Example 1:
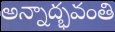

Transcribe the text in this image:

అన్నాద్భవంతి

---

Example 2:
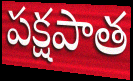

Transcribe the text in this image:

పక్షపాత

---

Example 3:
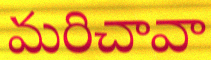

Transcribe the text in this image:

మరిచావా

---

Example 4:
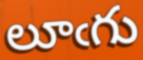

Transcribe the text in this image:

లూఁగు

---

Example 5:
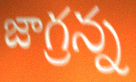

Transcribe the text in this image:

జాగ్రన్న